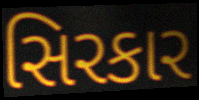
સિરકાર